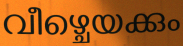
വീഴ്ചെയക്കും